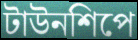
টাউনশিপে